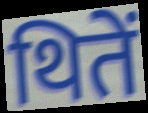
थितें